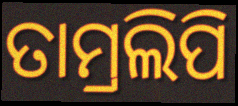
ତାମ୍ରଲିପି